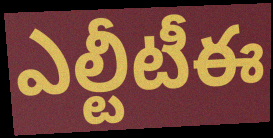
ఎల్టీటీఈ